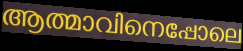
ആത്മാവിനെപ്പോലെ